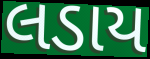
લડાય